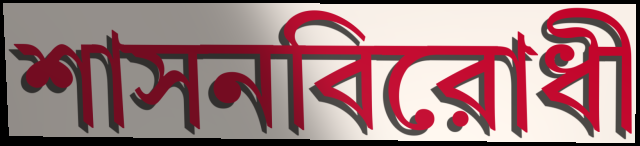
শাসনবিরোধী